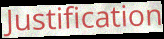
Justification